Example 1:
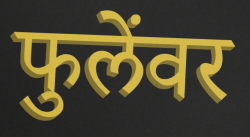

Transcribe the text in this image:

फुलेंवर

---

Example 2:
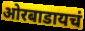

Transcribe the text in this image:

ओरबाडायचं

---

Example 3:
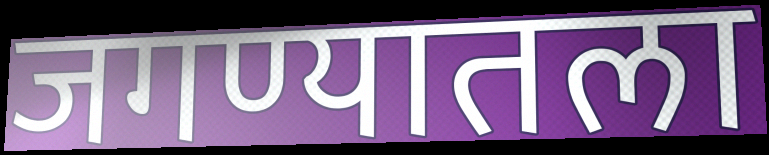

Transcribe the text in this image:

जगण्यातला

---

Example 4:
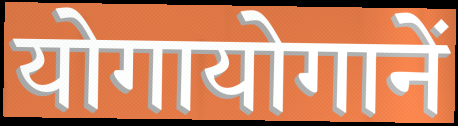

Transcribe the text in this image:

योगायोगानें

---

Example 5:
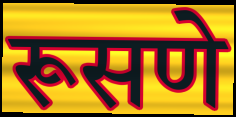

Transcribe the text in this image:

रूसणे